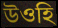
উওহি